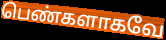
பெண்களாகவே